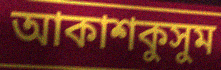
আকাশকুসুম